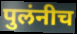
पुलंनीच